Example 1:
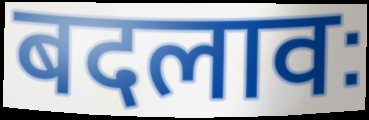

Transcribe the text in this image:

बदलावः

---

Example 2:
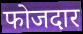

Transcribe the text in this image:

फोजदार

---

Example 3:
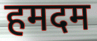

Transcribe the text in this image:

हमदम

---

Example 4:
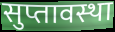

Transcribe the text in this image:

सुप्तावस्था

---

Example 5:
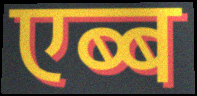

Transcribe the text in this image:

एब्ब